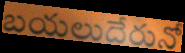
బయలుదేరునో